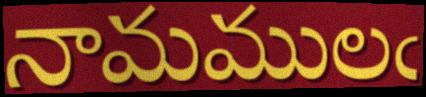
నామములఁ